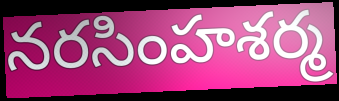
నరసింహశర్మ